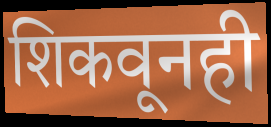
शिकवूनही